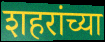
शहरांच्या